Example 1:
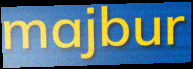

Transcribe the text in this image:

majbur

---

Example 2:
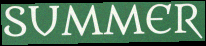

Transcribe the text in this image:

SUMMER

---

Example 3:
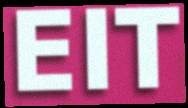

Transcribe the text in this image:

EIT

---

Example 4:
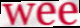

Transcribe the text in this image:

wee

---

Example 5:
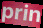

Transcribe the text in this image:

prin